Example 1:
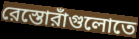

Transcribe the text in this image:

রেস্তোরাঁগুলোতে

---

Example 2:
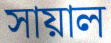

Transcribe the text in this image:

সায়াল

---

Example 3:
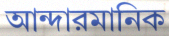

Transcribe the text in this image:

আন্দারমানিক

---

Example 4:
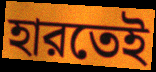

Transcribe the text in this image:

হারতেই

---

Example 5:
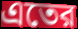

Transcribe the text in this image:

এতের